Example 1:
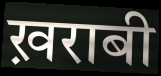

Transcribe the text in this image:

ख़राबी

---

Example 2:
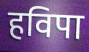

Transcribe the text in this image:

हविपा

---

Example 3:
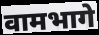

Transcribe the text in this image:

वामभागे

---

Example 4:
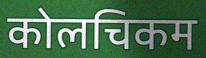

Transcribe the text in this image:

कोलचिकम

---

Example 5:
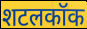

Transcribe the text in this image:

शटलकॉक